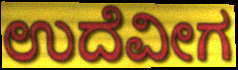
ಉದೆವೀಗ